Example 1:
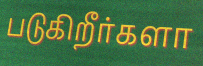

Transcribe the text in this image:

படுகிறீர்களா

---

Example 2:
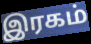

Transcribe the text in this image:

இரகம்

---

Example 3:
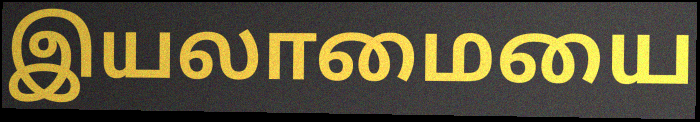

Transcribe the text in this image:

இயலாமையை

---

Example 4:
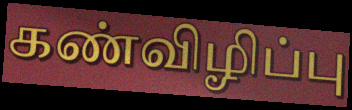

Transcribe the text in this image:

கண்விழிப்பு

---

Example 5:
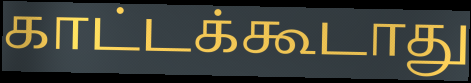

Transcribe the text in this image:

காட்டக்கூடாது